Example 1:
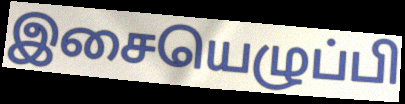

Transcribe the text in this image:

இசையெழுப்பி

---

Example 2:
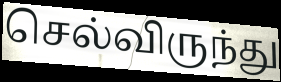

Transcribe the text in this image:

செல்விருந்து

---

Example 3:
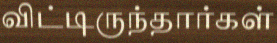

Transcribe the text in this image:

விட்டிருந்தார்கள்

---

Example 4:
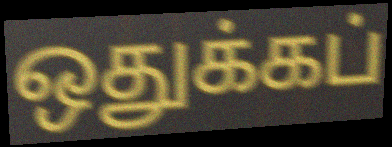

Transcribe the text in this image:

ஒதுக்கப்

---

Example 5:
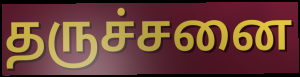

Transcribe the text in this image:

தருச்சனை